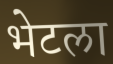
भेटला